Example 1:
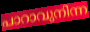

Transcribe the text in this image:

പാറാവുനിന്ന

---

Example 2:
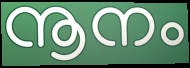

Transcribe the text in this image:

നൂനം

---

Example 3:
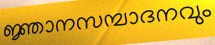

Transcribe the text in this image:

ജ്ഞാനസമ്പാദനവും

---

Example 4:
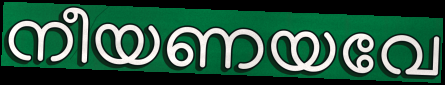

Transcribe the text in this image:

നീയണയവേ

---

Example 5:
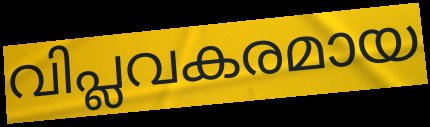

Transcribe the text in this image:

വിപ്ലവകരമായ